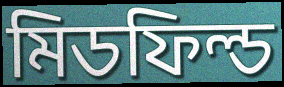
মিডফিল্ড